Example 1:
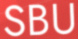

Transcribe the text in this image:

SBU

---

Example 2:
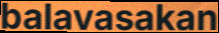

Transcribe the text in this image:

balavasakan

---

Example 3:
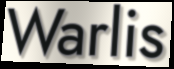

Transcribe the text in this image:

Warlis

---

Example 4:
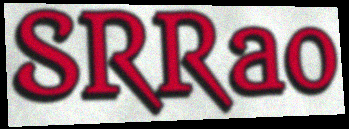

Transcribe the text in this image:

SRRao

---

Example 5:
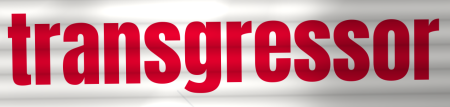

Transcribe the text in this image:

transgressor